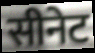
सीनेट